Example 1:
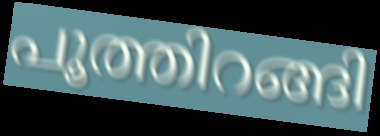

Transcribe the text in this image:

പൂത്തിറങ്ങി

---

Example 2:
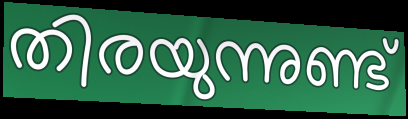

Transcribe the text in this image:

തിരയുന്നുണ്ട്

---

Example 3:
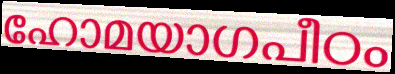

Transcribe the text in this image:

ഹോമയാഗപീഠം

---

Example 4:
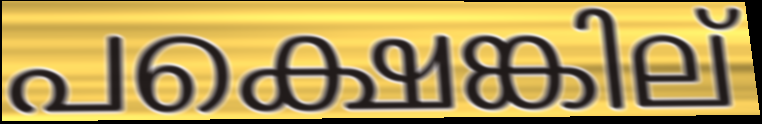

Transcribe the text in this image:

പക്ഷെങ്കില്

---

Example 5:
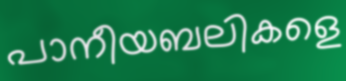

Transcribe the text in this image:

പാനീയബലികളെ